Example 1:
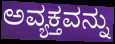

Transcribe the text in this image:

ಅವ್ಯಕ್ತವನ್ನು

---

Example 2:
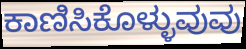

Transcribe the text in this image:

ಕಾಣಿಸಿಕೊಳ್ಳುವುವು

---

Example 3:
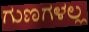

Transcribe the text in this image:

ಗುಣಗಳಲ್ಲ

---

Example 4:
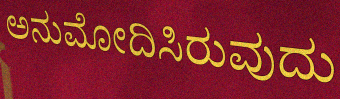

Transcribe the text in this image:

ಅನುಮೋದಿಸಿರುವುದು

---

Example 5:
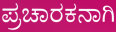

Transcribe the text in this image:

ಪ್ರಚಾರಕನಾಗಿ